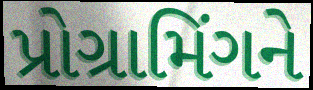
પ્રોગ્રામિંગને